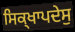
ਸਿਕ੍ਖਾਪਦੇਸੁ